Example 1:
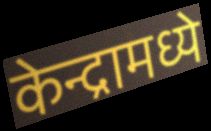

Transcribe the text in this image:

केन्द्रामध्ये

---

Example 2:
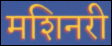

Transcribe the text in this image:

मशिनरी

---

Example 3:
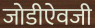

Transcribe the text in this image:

जोडीऐवजी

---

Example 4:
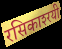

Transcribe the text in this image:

रसिकाश्रयी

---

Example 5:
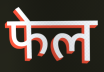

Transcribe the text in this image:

फेल